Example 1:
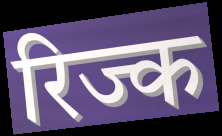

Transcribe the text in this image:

रिज्क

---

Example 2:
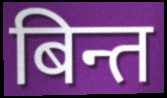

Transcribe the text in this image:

बिन्त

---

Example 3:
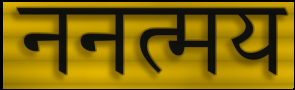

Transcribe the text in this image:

ननत्मय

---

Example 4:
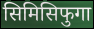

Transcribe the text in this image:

सिमिसिफुगा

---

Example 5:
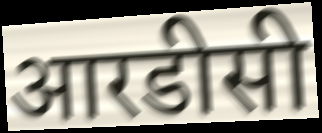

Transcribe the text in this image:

आरडीसी